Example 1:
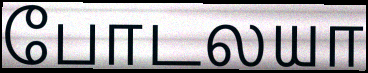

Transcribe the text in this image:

போடலயா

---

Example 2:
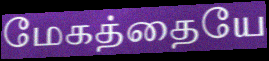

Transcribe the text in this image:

மேகத்தையே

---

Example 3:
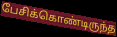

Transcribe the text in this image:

பேசிக்கொண்டிருந்த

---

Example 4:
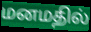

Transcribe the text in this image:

மனமதில்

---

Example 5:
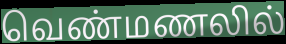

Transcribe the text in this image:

வெண்மணலில்